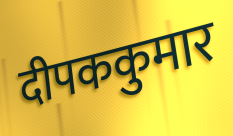
दीपककुमार